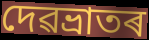
দেৱভ্ৰাতৰ